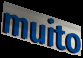
muito